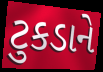
ટુકડાને